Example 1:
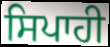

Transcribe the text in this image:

ਸਿਪਾਹੀ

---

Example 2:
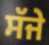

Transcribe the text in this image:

ਸੱਜੇ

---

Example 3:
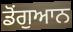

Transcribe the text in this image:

ਡੋਂਗੁਆਨ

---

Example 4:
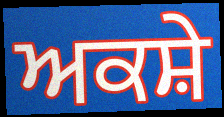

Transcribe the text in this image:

ਅਕਸ਼ੇ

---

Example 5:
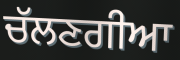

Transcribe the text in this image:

ਚੱਲਣਗੀਆ